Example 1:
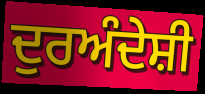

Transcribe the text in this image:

ਦੁਰਅੰਦੇਸ਼ੀ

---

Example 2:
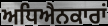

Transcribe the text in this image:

ਅਧਿਐਨਕਾਰਾਂ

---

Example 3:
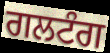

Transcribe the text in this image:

ਗਲਟੰਗ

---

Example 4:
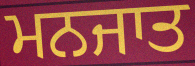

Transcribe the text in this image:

ਮਨਜਾਤ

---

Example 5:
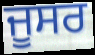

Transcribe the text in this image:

ਜੂਸਰ